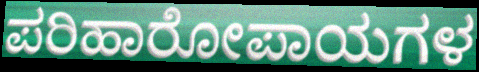
ಪರಿಹಾರೋಪಾಯಗಳ